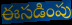
ఈసడింపు